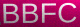
BBFC